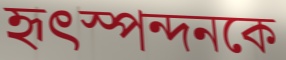
হৃৎস্পন্দনকে